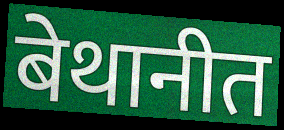
बेथानीत